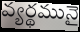
వ్యర్థమునై